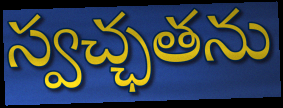
స్వచ్ఛతను